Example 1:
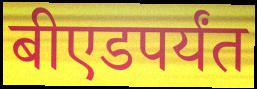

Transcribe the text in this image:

बीएडपर्यंत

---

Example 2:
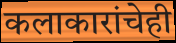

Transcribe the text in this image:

कलाकारांचेही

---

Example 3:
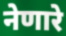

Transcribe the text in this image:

नेणारे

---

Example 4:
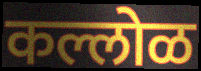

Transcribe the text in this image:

कल्लोळ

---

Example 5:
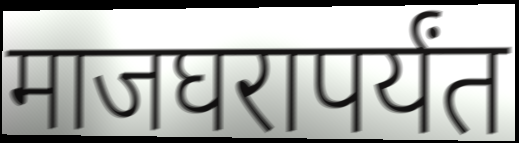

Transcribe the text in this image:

माजघरापर्यंत